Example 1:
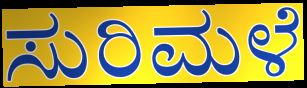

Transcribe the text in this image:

ಸುರಿಮಳೆ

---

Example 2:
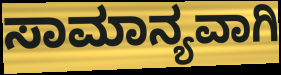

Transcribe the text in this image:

ಸಾಮಾನ್ಯವಾಗಿ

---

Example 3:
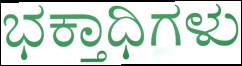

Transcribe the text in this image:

ಭಕ್ತಾಧಿಗಳು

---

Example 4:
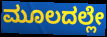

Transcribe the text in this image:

ಮೂಲದಲ್ಲೇ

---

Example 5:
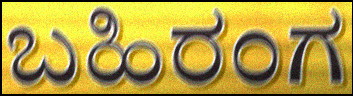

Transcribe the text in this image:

ಬಹಿರಂಗ